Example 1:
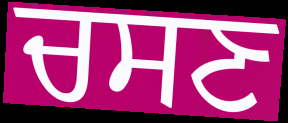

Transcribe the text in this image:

ਚਸਣ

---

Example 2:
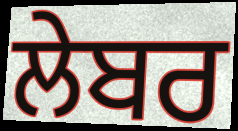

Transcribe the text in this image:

ਲੇਬਰ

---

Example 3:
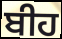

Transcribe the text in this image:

ਬੀਹ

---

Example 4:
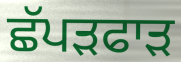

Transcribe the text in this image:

ਛੱਪੜਫਾੜ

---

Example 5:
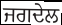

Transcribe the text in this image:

ਜਗਦੇਲ